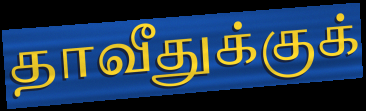
தாவீதுக்குக்